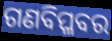
ଗଣବିପ୍ଳବର